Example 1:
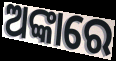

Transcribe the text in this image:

ଅଙ୍କାରେ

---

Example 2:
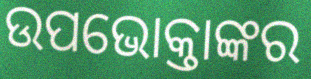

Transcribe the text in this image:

ଉପଭୋକ୍ତାଙ୍କର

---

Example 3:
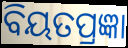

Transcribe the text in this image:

ବିୟତପ୍ରଜ୍ଞା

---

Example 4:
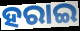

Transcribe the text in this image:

ହରାଇ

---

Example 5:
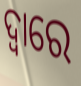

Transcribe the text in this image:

ଦ୍ବାରେ